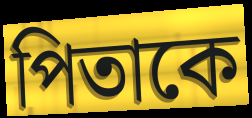
পিতাকে